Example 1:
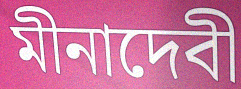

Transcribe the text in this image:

মীনাদেবী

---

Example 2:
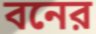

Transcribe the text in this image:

বনের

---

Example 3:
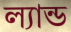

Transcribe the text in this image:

ল্যান্ড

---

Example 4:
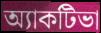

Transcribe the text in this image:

অ্যাকটিভা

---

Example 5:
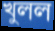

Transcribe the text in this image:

খুলল